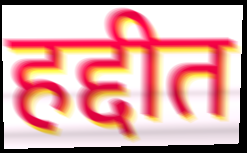
हद्दीत